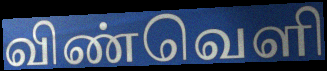
விண்வெளி